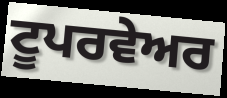
ਟੂਪਰਵੇਅਰ